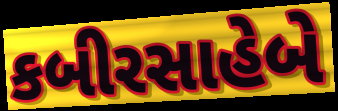
કબીરસાહેબે